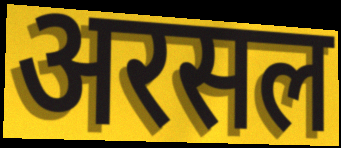
अरसल